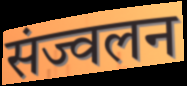
संज्वलन